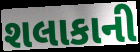
શલાકાની